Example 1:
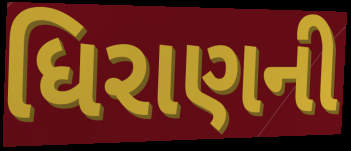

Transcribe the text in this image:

ધિરાણની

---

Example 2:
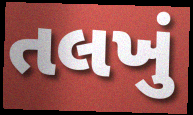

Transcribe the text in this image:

તલખું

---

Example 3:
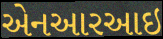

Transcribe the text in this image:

એનઆરઆઇ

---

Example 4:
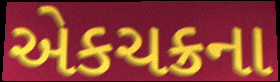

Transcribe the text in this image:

એકચક્રના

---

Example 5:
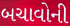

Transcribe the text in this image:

બચાવોની